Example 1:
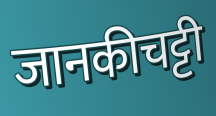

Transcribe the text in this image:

जानकीचट्टी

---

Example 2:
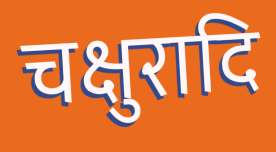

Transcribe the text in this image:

चक्षुरादि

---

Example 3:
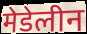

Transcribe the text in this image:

मेडेलीन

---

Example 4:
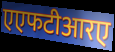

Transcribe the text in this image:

एएफटीआरए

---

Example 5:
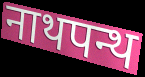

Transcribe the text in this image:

नाथपन्थ